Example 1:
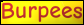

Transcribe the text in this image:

Burpees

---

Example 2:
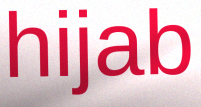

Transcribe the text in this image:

hijab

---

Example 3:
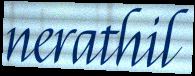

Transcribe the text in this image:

nerathil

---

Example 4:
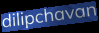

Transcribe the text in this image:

dilipchavan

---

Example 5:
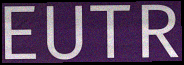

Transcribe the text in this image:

EUTR